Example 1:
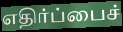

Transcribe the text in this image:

எதிர்ப்பைச்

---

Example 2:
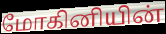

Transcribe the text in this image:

மோகினியின்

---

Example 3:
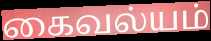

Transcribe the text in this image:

கைவல்யம்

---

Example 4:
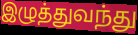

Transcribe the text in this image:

இழுத்துவந்து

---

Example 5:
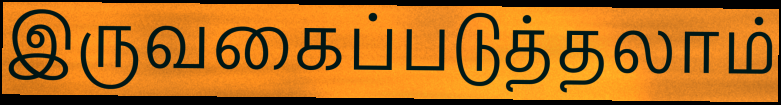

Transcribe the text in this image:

இருவகைப்படுத்தலாம்